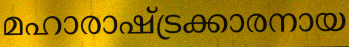
മഹാരാഷ്ട്രക്കാരനായ